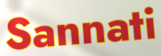
Sannati